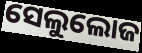
ସେଲୁଲୋଜ